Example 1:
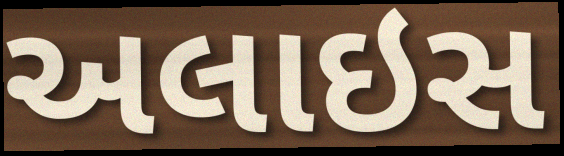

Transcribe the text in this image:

અલાઇસ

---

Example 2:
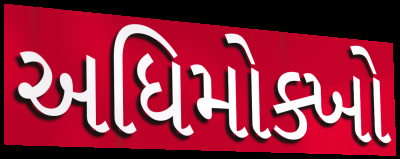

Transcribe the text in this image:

અધિમોક્ખો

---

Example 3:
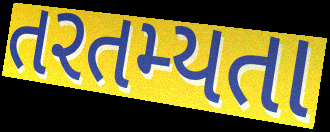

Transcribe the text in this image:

તરતમ્યતા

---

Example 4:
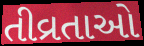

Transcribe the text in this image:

તીવ્રતાઓ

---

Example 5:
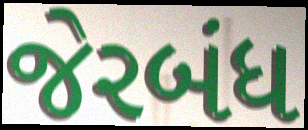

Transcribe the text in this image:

જેરબંધ